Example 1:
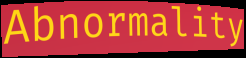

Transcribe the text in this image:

Abnormality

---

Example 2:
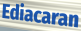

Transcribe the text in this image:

Ediacaran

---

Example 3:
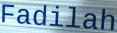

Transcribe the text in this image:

Fadilah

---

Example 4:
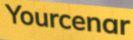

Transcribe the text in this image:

Yourcenar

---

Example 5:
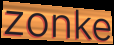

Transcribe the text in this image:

zonke